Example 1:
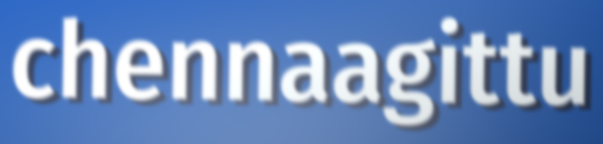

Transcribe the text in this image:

chennaagittu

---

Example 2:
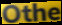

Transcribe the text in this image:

Othe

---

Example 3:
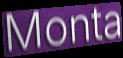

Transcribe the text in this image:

Monta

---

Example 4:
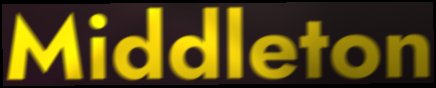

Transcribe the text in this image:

Middleton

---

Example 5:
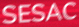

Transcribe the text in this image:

SESAC